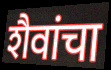
शैवांचा